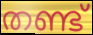
തണ്ട്